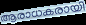
ആരാധകരായി